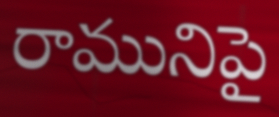
రామునిపై